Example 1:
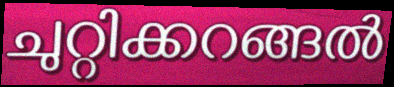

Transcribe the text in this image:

ചുറ്റിക്കറങ്ങൽ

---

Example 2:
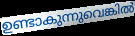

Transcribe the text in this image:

ഉണ്ടാകുന്നുവെങ്കിൽ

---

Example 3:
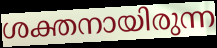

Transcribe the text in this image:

ശക്തനായിരുന്ന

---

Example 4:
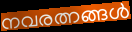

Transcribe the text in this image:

നവരത്നങ്ങൾ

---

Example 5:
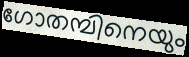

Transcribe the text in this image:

ഗോതമ്പിനെയും